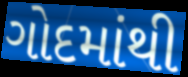
ગોદમાંથી